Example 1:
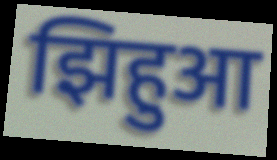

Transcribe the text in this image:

झिहुआ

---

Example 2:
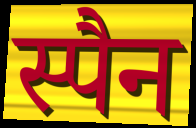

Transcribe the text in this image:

स्पैन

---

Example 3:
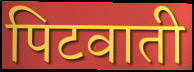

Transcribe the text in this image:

पिटवाती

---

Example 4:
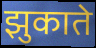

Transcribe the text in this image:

झुकाते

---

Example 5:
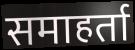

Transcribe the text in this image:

समाहर्ता